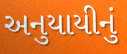
અનુયાયીનું